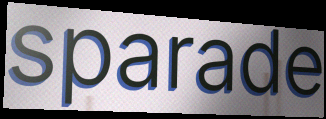
sparade